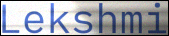
Lekshmi